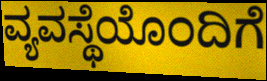
ವ್ಯವಸ್ಥೆಯೊಂದಿಗೆ